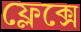
ফ্লেক্সে